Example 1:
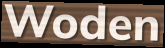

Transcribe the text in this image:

Woden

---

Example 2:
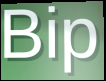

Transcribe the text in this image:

Bip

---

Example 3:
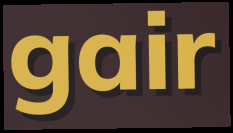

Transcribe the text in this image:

gair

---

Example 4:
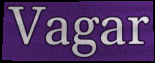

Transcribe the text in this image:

Vagar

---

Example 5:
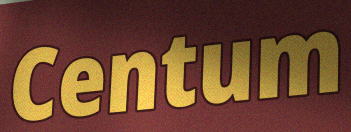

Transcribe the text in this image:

Centum